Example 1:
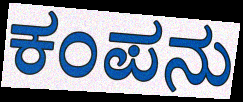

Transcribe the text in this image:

ಕಂಪನು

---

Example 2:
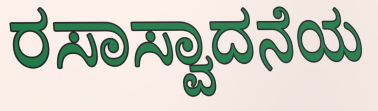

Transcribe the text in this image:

ರಸಾಸ್ವಾದನೆಯ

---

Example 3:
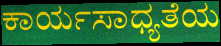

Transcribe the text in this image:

ಕಾರ್ಯಸಾಧ್ಯತೆಯ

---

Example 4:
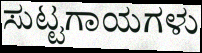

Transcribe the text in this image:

ಸುಟ್ಟಗಾಯಗಳು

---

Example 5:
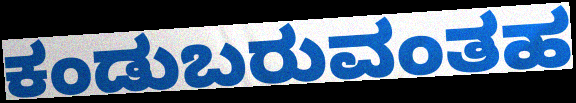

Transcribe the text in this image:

ಕಂಡುಬರುವಂತಹ